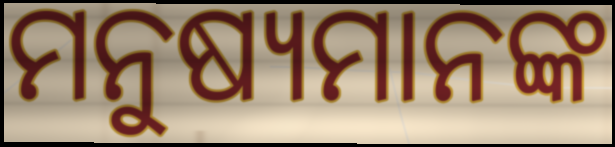
ମନୁଷ୍ୟମାନଙ୍କ